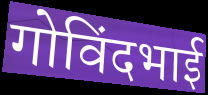
गोविंदभाई